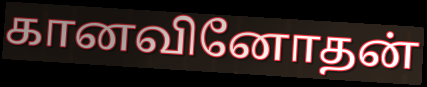
கானவினோதன்